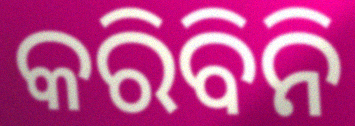
କରିବିନି